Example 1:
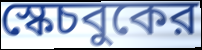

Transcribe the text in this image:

স্কেচবুকের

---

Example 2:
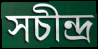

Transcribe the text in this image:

সচীন্দ্র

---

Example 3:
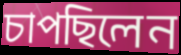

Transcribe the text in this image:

চাপছিলেন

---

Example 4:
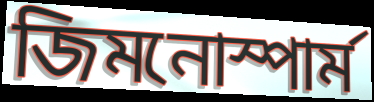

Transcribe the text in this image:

জিমনোস্পার্ম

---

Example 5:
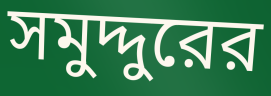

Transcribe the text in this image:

সমুদ্দুরের